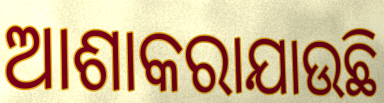
ଆଶାକରାଯାଉଛି